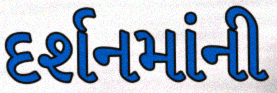
દર્શનમાંની